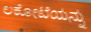
ಲಕೋಟೆಯನ್ನು